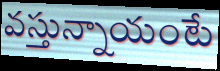
వస్తున్నాయంటే